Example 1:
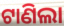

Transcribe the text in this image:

ଟାଣିଲା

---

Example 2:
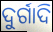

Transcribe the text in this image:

ଦୁର୍ଗାଦି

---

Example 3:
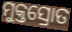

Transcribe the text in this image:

ମୁକ୍ତସ୍ରୋତ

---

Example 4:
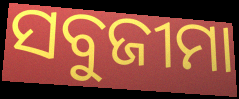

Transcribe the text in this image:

ସବୁଜୀମା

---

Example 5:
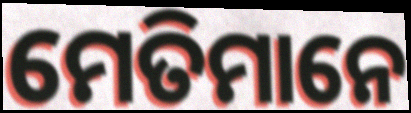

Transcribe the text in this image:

ମେତିମାନେ